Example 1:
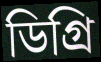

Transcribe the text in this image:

ডিগ্ৰি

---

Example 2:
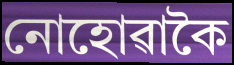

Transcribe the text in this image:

নোহোৱাকৈ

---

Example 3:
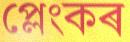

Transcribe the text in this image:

প্লেংকৰ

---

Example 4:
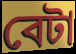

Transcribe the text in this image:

বেটা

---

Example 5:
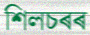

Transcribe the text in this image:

শিলচৰৰ